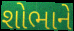
શોભાને